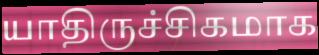
யாதிருச்சிகமாக